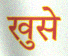
खुसे